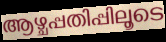
ആഴ്ചപ്പതിപ്പിലൂടെ